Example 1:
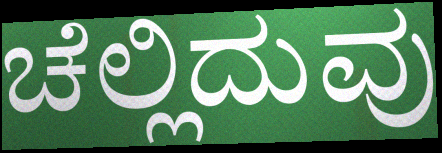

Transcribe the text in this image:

ಚೆಲ್ಲಿದುವು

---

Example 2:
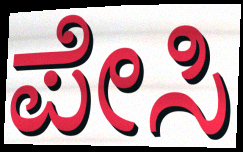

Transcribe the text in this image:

ಪೇಸಿ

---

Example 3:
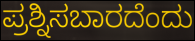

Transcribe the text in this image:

ಪ್ರಶ್ನಿಸಬಾರದೆಂದು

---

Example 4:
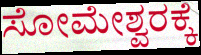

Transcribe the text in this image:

ಸೋಮೇಶ್ವರಕ್ಕೆ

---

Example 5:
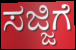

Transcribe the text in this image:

ಸಜ್ಜಿಗೆ